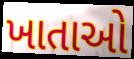
ખાતાઓ